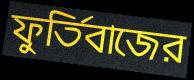
ফুর্তিবাজের